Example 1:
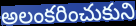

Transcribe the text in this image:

అలంకరించుకుని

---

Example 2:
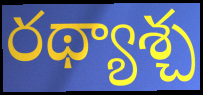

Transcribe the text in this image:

రథ్యాశ్చ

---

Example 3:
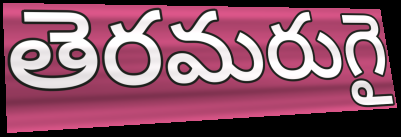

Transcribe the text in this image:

తెరమరుగై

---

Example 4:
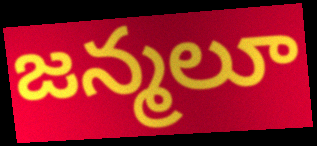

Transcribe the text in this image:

జన్మలూ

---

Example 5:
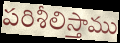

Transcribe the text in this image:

పరిశీలిస్తాము